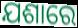
ଯଶାରେ